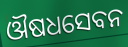
ଔଷଧସେବନ